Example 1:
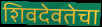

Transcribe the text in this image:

शिवदेवतेचा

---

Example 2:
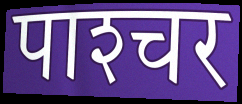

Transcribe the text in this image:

पाश्चर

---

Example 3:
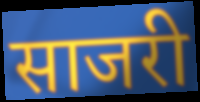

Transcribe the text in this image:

साजरी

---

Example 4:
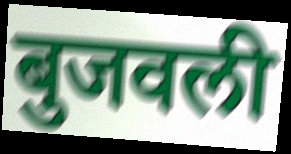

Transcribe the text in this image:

बुजवली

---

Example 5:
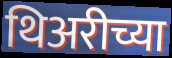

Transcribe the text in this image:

थिअरीच्या